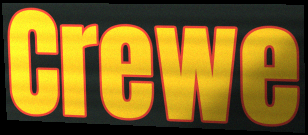
Crewe